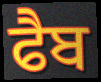
ਫੈਬ